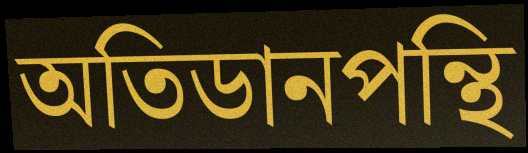
অতিডানপন্থি